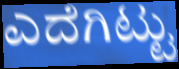
ಎದೆಗಿಟ್ಟು